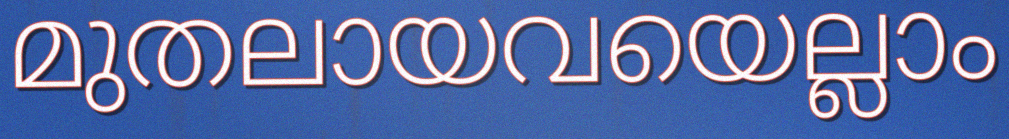
മുതലായവയെല്ലാം